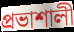
প্রভাশালী